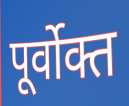
पूर्वोक्त